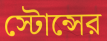
স্টোন্সের